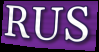
RUS